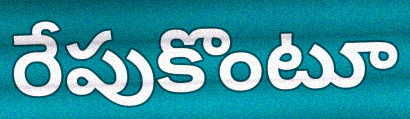
రేపుకొంటూ